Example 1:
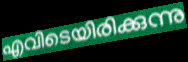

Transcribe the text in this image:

എവിടെയിരിക്കുന്നു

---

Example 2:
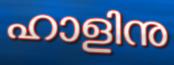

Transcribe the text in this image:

ഹാളിനു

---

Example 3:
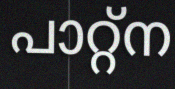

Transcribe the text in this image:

പാറ്റ്ന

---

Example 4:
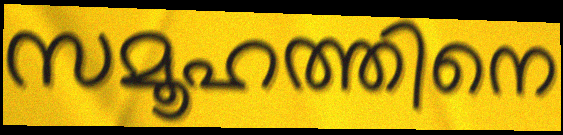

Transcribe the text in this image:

സമൂഹത്തിനെ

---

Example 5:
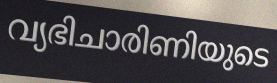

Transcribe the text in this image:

വ്യഭിചാരിണിയുടെ